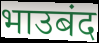
भाउबंद